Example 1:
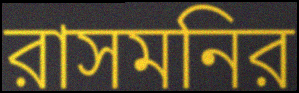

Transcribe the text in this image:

রাসমনির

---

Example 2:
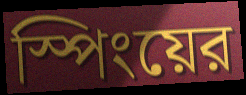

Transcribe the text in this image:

স্পিংয়ের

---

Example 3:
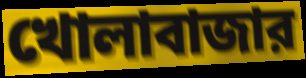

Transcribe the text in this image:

খোলাবাজার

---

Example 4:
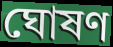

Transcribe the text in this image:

ঘোষণ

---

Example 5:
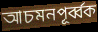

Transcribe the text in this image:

আচমনপূর্ব্বক